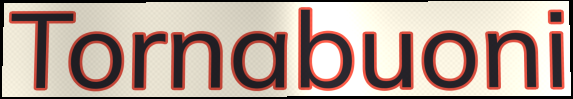
Tornabuoni